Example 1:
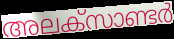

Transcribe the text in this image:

അലക്സാണ്ടർ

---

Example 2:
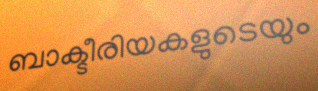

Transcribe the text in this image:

ബാക്ടീരിയകളുടെയും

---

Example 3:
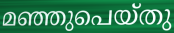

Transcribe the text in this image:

മഞ്ഞുപെയ്തു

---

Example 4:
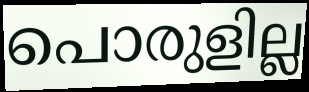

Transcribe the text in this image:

പൊരുളില്ല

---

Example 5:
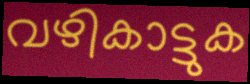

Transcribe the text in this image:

വഴികാട്ടുക